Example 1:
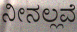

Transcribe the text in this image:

ನೀನಲ್ಲವೆ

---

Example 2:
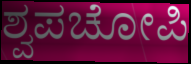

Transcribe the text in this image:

ಶ್ವಪಚೋಪಿ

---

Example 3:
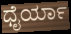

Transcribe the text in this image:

ಧೈರ್ಯಾ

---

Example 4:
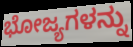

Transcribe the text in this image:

ಭೋಜ್ಯಗಳನ್ನು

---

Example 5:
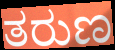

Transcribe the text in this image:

ತರುಣ